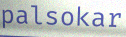
palsokar